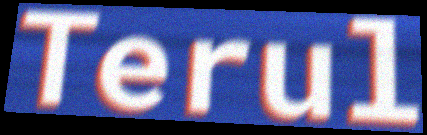
Terul